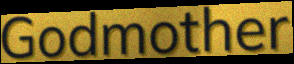
Godmother